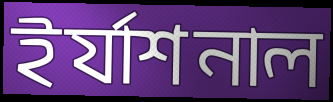
ইর্যাশনাল